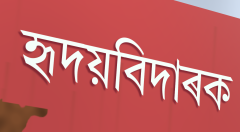
হৃদয়বিদাৰক